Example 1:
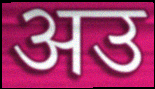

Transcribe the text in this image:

अउ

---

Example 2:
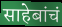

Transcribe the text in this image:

साहेबांचं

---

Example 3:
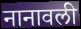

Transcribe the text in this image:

नानावली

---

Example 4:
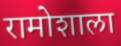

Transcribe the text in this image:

रामोशाला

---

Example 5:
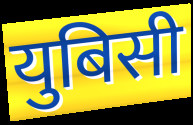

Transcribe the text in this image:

युबिसी